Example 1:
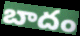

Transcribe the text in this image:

బాదం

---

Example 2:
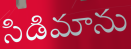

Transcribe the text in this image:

సిడిమాను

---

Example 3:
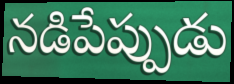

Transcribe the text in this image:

నడిపేప్పుడు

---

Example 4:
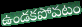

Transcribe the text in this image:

ఉండకపోవటం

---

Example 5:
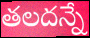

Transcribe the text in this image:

తలదన్నే